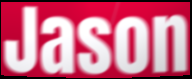
Jason